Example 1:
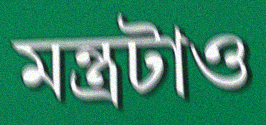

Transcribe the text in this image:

মন্ত্রটাও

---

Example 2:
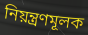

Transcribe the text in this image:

নিয়ন্ত্রণমূলক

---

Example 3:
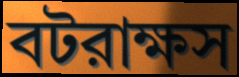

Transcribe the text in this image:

বটরাক্ষস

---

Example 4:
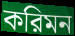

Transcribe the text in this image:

করিমন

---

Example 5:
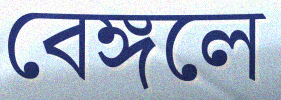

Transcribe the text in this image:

বেঙ্গলে